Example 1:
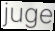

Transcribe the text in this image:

juge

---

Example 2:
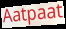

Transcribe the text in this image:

Aatpaat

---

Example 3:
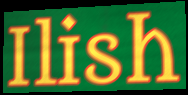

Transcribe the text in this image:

Ilish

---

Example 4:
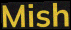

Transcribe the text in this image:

Mish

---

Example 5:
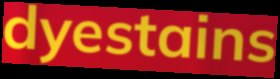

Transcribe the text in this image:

dyestains